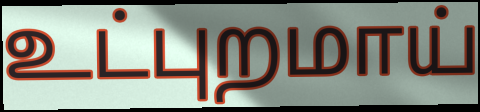
உட்புறமாய்